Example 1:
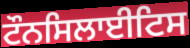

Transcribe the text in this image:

ਟੌਨਸਿਲਾਈਟਿਸ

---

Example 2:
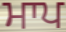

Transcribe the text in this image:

ਮਾਪ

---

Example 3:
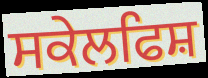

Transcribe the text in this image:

ਸਕੇਲਫਿਸ਼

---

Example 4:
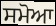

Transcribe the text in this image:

ਸਮੋਆ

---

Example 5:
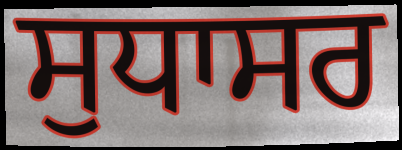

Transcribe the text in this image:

ਸੁਧਾਸਰ